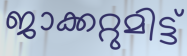
ജാക്കറ്റുമിട്ട്